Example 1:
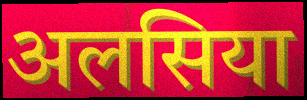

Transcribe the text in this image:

अलसिया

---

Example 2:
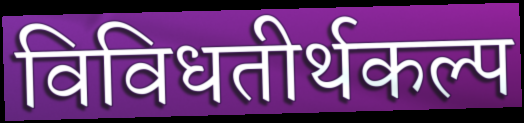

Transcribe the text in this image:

विविधतीर्थकल्प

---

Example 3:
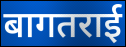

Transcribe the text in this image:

बागतराई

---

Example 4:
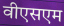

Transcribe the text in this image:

वीएसएम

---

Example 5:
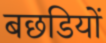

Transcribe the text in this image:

बछडियों